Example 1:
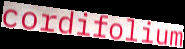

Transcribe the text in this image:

cordifolium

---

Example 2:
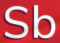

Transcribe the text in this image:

Sb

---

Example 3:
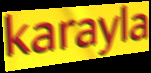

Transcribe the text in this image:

karayla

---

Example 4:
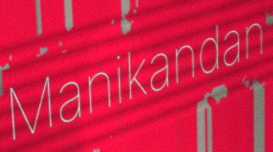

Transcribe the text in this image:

Manikandan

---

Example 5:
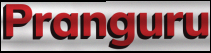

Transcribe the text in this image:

Pranguru